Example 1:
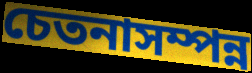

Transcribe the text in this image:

চেতনাসম্পন্ন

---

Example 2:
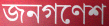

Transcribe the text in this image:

জনগণেশ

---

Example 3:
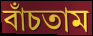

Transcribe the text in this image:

বাঁচতাম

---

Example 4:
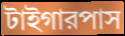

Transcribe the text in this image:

টাইগারপাস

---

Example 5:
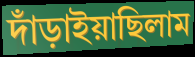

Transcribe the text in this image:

দাঁড়াইয়াছিলাম